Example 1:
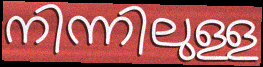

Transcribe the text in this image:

നിന്നിലുള്ള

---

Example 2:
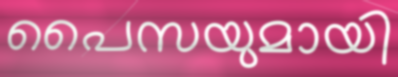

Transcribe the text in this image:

പൈസയുമായി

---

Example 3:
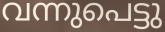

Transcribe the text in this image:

വന്നുപെട്ടു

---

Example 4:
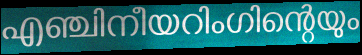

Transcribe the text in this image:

എഞ്ചിനീയറിംഗിന്റെയും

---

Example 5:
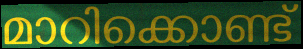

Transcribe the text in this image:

മാറിക്കൊണ്ട്